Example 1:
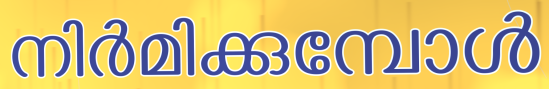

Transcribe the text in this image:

നിർമിക്കുമ്പോൾ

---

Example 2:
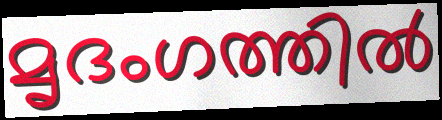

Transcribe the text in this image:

മൃദംഗത്തിൽ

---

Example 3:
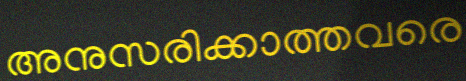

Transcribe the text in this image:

അനുസരിക്കാത്തവരെ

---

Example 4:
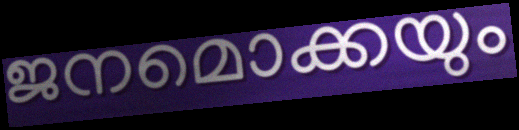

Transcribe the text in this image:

ജനമൊക്കയും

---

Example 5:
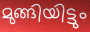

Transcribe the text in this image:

മുങ്ങിയിട്ടും